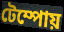
টেম্পোয়